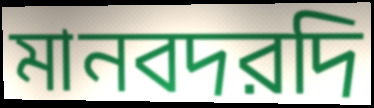
মানবদরদি